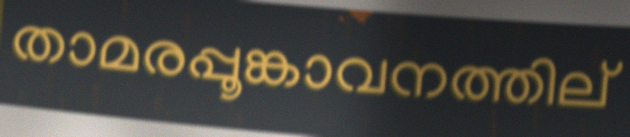
താമരപ്പൂങ്കാവനത്തില്